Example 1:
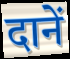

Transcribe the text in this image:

दानें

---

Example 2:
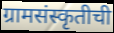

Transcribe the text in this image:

ग्रामसंस्कृतीची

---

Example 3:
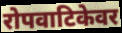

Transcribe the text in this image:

रोपवाटिकेवर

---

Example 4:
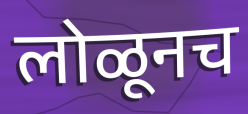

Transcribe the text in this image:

लोळूनच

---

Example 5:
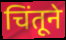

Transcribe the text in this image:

चिंतूने